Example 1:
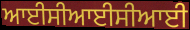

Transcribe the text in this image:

ਆਈਸੀਆਈਸੀਆਈ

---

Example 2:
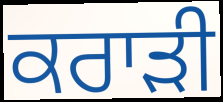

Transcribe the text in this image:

ਕਰਾੜੀ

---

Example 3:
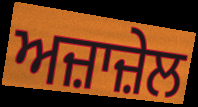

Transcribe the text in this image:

ਅਜ਼ਾਜ਼ੇਲ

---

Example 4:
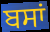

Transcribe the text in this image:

ਬਸਾਂ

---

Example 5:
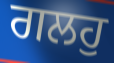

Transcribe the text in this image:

ਗਲਹੁ